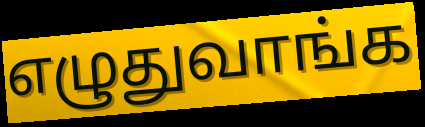
எழுதுவாங்க